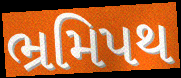
ભ્રમિપથ